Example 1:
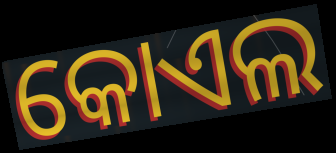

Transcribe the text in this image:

କୋଏଲ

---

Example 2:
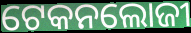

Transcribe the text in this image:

ଟେକନଲୋଜୀ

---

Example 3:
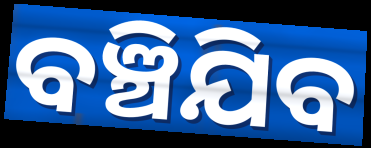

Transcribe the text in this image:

ବଞ୍ଚିଯିବ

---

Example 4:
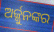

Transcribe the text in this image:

ଅର୍ଜ୍ଜୁନଙ୍କର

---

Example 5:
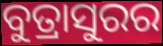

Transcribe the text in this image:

ବୁତ୍ରାସୁରର